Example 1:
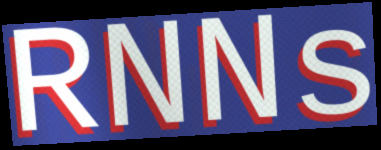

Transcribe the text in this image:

RNNs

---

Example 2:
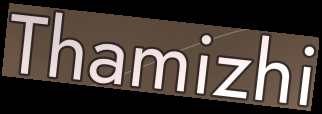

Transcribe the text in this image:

Thamizhi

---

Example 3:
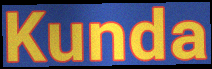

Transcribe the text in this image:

Kunda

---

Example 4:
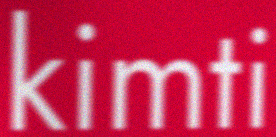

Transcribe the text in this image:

kimti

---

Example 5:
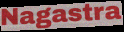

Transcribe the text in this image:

Nagastra